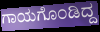
ಗಾಯಗೊಂಡಿದ್ದ